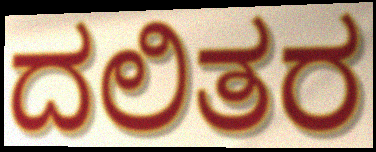
ದಲಿತರ